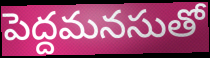
పెద్దమనసుతో